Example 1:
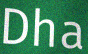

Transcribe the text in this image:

Dha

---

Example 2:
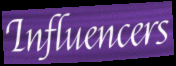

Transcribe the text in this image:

Influencers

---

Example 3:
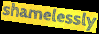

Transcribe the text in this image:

shamelessly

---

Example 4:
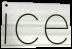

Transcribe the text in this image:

ice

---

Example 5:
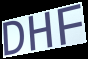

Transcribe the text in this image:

DHF